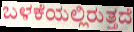
ಬಳಕೆಯಲ್ಲಿರುತ್ತದೆ